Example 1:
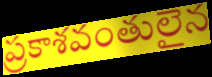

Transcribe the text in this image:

ప్రకాశవంతులైన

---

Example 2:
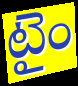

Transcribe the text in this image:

టైం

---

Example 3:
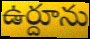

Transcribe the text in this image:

ఉర్దూను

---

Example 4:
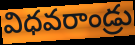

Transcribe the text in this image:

విధవరాండ్రు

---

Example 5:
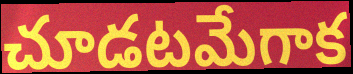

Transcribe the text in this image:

చూడటమేగాక